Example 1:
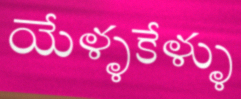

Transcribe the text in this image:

యేళ్ళకేళ్ళు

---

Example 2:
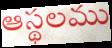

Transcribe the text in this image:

ఆస్థలము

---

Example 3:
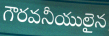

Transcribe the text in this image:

గౌరవనీయులైన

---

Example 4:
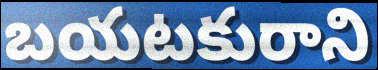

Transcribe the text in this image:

బయటకురాని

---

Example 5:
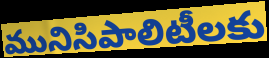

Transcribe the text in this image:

మునిసిపాలిటీలకు